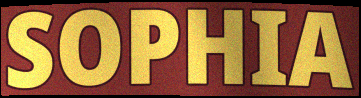
SOPHIA